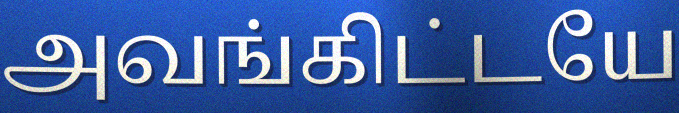
அவங்கிட்டயே